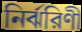
নির্ঝরিণী